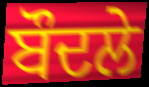
ਬੌਦਲੇ